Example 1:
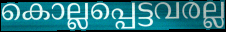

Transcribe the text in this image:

കൊല്ലപ്പെട്ടവരല്ല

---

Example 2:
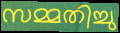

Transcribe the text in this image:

സമ്മതിച്ചു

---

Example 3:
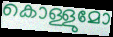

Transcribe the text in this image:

കൊള്ളുമോ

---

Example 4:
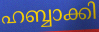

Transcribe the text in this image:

ഹബ്ബാക്കി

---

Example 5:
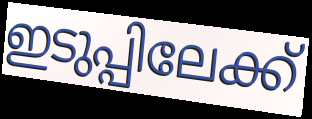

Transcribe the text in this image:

ഇടുപ്പിലേക്ക്